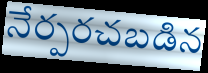
నేర్పరచబడిన